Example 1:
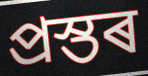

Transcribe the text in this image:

প্ৰস্তৰ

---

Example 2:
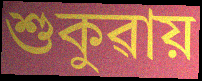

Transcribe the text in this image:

শুকুৱায়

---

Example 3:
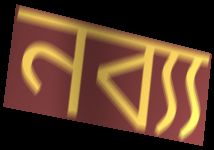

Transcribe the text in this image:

নব্য্য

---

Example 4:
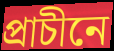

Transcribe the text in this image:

প্ৰাচীনে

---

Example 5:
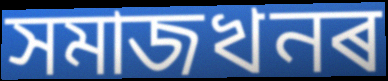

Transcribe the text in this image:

সমাজখনৰ